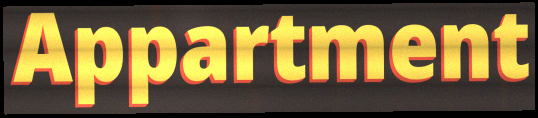
Appartment